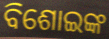
ବିଶୋଇଙ୍କ